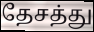
தேசத்து